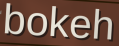
bokeh